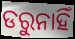
ଡରୁନାହିଁ